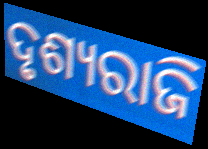
ଦୃଶ୍ୟରାଜି